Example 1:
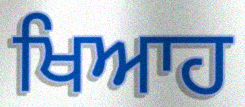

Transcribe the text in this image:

ਖਿਆਹ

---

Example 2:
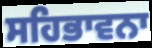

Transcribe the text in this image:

ਸਹਿਭਾਵਨਾ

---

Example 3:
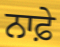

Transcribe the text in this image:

ਨਾਫ਼ੇ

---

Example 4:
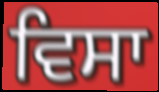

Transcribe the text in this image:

ਵਿਸਾ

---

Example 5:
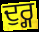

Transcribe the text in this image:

ਦੁਰ੍ਗ